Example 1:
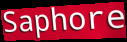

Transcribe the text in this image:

Saphore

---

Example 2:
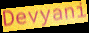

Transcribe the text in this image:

Devyani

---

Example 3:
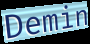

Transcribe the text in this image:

Demin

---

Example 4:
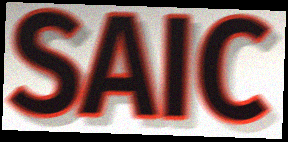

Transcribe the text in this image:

SAIC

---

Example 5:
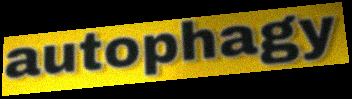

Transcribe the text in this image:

autophagy